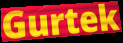
Gurtek